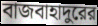
বাজবাহাদুরের